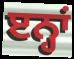
ੲਨ੍ਹਾਂ